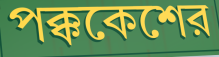
পক্ককেশের